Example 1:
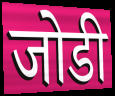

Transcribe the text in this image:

जोडी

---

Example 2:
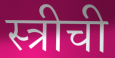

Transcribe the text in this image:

स्त्रीची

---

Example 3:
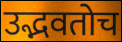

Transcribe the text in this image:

उद्भवतोच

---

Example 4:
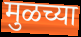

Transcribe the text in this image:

मुळच्या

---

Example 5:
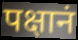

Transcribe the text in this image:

पक्षानं